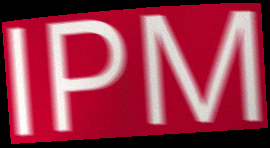
IPM